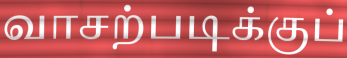
வாசற்படிக்குப்